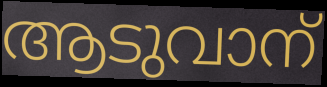
ആടുവാന്